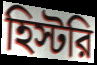
হিস্টরি